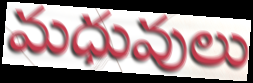
మధువులు